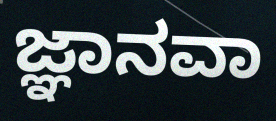
ಜ್ಞಾನವಾ